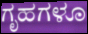
ಗೃಹಗಳೂ